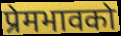
प्रेमभावको